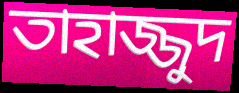
তাহাজ্জুদ